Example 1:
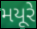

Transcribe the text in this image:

મયૂરે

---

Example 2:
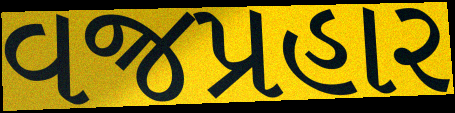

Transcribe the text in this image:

વજ્રપ્રહાર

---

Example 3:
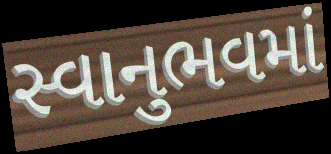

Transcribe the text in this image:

સ્વાનુભવમાં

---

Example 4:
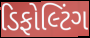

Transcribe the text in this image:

ડિફોલ્ટિંગ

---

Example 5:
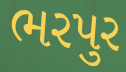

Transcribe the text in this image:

ભરપુર